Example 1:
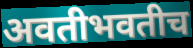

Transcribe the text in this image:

अवतीभवतीच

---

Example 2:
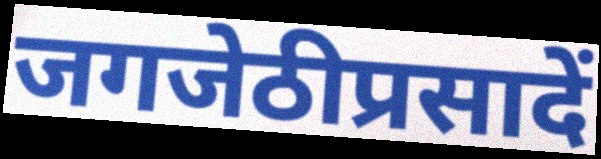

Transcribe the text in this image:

जगजेठीप्रसादें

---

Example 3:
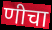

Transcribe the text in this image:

णीचा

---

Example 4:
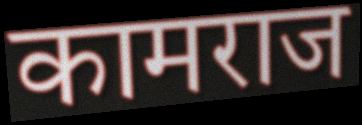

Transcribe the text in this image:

कामराज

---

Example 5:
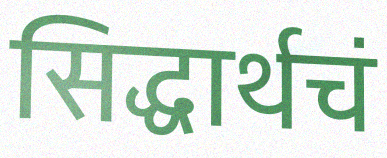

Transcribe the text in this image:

सिद्धार्थचं